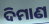
ଦିମାଣ